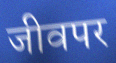
जीवपर